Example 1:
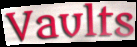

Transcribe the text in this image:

Vaults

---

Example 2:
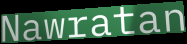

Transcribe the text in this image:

Nawratan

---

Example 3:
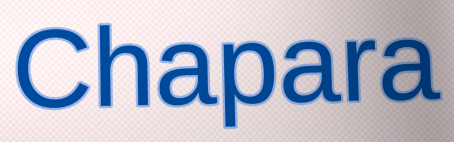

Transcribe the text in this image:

Chapara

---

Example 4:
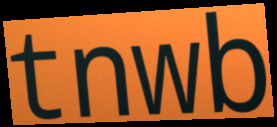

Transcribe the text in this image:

tnwb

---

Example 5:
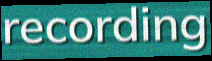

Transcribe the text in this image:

recording